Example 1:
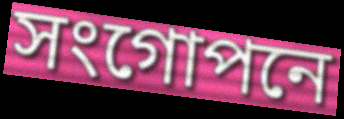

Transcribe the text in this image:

সংগোপনে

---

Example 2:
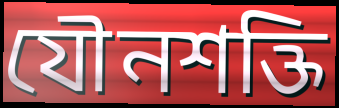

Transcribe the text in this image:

যৌনশক্তি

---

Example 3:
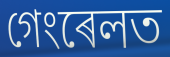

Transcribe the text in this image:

গেংৰেলত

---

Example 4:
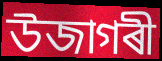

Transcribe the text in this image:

উজাগৰী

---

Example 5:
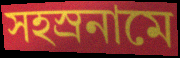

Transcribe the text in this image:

সহস্ৰনামে